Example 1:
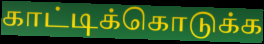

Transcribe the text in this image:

காட்டிக்கொடுக்க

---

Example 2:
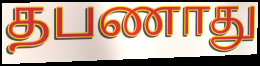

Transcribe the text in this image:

தபணாது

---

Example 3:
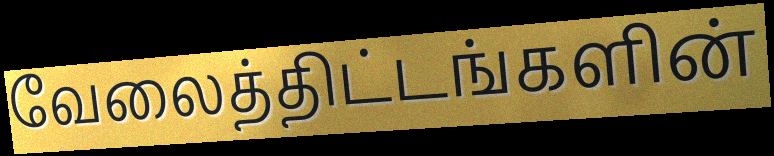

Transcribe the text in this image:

வேலைத்திட்டங்களின்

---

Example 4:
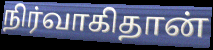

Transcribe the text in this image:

நிர்வாகிதான்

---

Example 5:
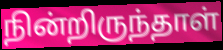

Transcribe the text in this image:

நின்றிருந்தாள்